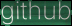
github